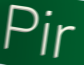
Pir